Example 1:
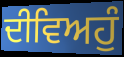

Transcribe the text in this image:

ਦੀਵਿਅਹੁੰ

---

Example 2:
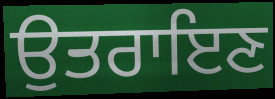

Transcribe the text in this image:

ਉਤਰਾਇਣ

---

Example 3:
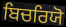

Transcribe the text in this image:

ਬਿਚਰਿਯੋ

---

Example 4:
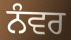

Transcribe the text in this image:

ਨੰਵਰ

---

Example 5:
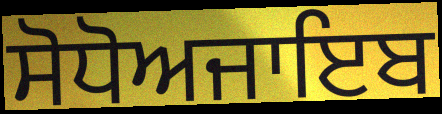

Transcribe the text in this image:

ਸੋਧੋਅਜਾਇਬ